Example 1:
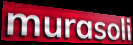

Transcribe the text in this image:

murasoli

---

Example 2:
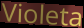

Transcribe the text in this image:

Violeta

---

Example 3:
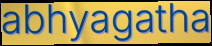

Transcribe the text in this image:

abhyagatha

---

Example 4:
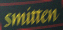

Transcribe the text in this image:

smitten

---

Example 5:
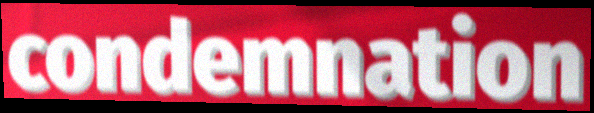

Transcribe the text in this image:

condemnation